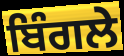
ਬਿੰਗਲੇ